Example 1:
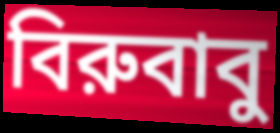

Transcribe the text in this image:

বিরুবাবু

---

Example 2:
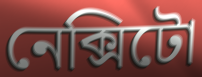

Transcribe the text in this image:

নেক্সিটো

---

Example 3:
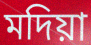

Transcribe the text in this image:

মদিয়া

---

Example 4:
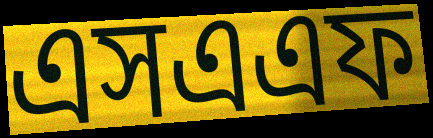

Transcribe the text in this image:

এসএএফ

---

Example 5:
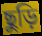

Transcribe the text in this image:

ছুড়ি